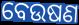
ବେଉଷଣ